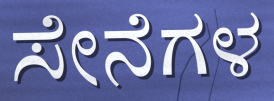
ಸೇನೆಗಳ